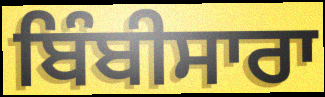
ਬਿੰਬੀਸਾਰਾ